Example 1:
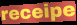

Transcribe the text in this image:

receipe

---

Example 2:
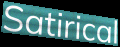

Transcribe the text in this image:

Satirical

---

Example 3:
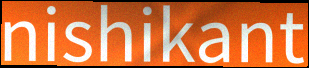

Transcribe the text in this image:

nishikant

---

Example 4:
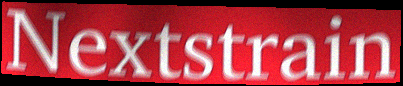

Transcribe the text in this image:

Nextstrain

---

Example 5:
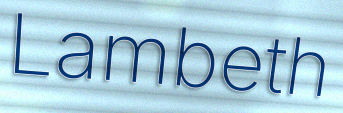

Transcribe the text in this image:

Lambeth